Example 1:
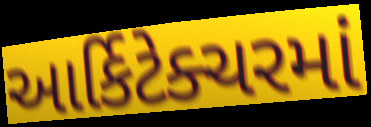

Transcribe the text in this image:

આર્કિટેક્ચરમાં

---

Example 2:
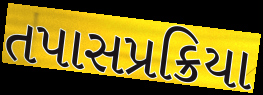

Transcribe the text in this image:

તપાસપ્રક્રિયા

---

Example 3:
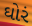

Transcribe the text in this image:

ઘોરં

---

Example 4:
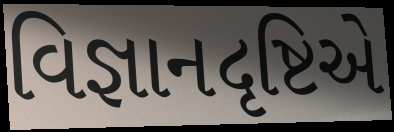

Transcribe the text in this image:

વિજ્ઞાનદૃષ્ટિએ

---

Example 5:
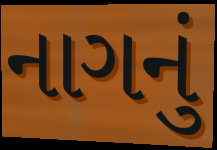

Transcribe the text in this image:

નાગનું